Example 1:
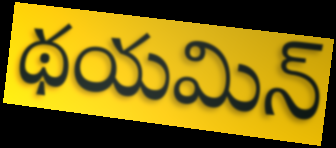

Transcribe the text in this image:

థయమిన్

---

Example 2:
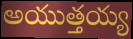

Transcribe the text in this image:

అయుత్తయ్య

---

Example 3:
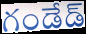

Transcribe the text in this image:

గండేడ్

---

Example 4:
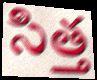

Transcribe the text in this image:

సిత్త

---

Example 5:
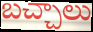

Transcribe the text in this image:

బచ్చాలు